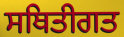
ਸਥਿਤੀਗਤ